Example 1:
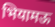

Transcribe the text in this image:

भियामऊ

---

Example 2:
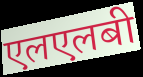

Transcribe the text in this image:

एलएलबी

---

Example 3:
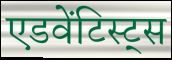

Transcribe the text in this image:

एडवेंटिस्ट्स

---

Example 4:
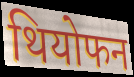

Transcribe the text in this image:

थियोफन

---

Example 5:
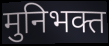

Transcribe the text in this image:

मुनिभक्त